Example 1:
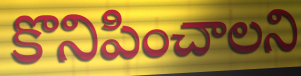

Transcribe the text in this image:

కొనిపించాలని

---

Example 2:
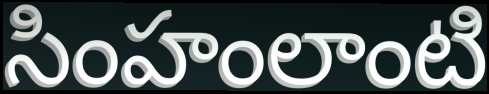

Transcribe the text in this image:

సింహంలాంటి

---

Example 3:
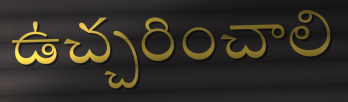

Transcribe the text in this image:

ఉచ్చరించాలి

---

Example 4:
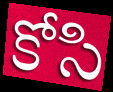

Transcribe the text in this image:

కోసి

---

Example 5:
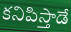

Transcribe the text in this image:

కనిపిస్తాడే